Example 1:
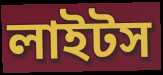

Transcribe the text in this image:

লাইটস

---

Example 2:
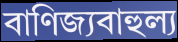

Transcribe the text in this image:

বাণিজ্যবাহুল্য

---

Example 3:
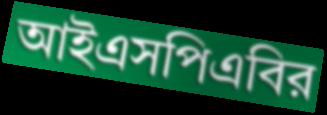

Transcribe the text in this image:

আইএসপিএবির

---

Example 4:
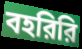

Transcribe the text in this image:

বহরিরি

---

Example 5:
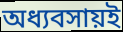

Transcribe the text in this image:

অধ্যবসায়ই